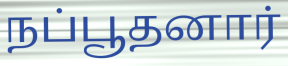
நப்பூதனார்